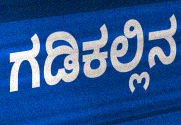
ಗಡಿಕಲ್ಲಿನ